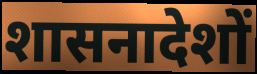
शासनादेशों